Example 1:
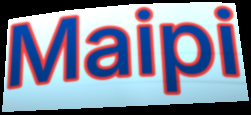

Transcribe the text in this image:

Maipi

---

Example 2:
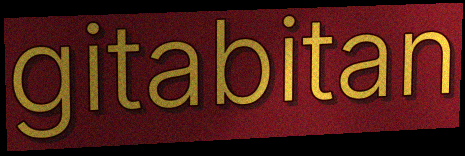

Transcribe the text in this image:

gitabitan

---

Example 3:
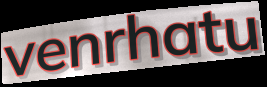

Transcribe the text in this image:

venrhatu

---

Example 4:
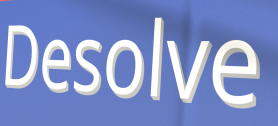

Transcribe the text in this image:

Desolve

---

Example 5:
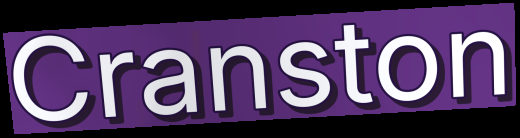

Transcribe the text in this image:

Cranston